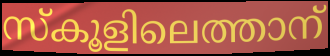
സ്കൂളിലെത്താന്